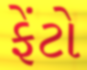
ફેંટો